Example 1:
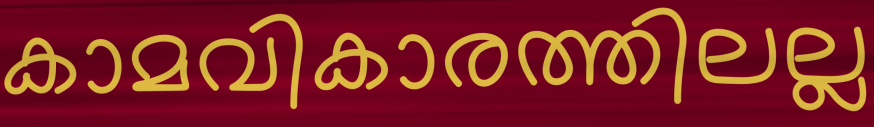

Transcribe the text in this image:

കാമവികാരത്തിലല്ല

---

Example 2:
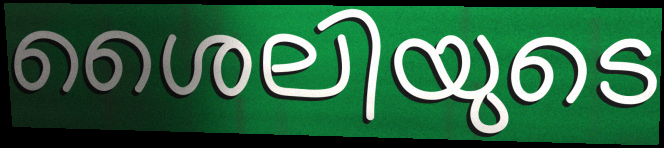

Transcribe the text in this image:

ശൈലിയുടെ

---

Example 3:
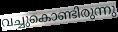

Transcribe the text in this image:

വച്ചുകൊണ്ടിരുന്നു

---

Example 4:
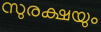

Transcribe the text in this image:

സുരക്ഷയും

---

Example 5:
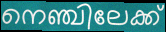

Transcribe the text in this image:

നെഞ്ചിലേക്ക്